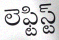
లెఫ్టిస్ట్